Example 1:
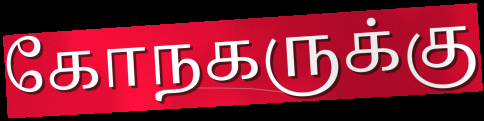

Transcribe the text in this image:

கோநகருக்கு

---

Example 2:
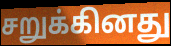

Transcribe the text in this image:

சறுக்கினது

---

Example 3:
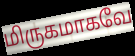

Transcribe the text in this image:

மிருகமாகவே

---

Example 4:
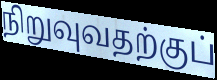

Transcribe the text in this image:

நிறுவுவதற்குப்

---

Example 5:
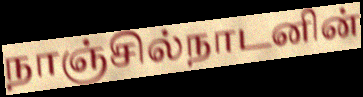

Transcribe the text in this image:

நாஞ்சில்நாடனின்